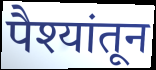
पैश्यांतून